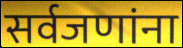
सर्वजणांना